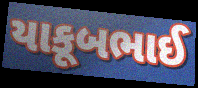
યાકૂબભાઈ